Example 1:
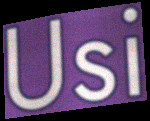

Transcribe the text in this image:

Usi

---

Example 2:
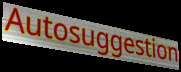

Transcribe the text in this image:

Autosuggestion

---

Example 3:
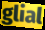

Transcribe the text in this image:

glial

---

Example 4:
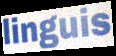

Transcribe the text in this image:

linguis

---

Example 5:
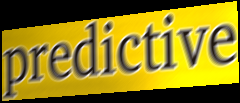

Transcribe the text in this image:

predictive